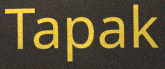
Tapak